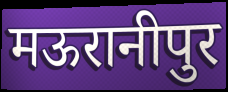
मऊरानीपुर